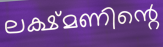
ലക്ഷ്മണിന്റെ